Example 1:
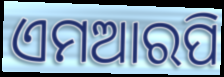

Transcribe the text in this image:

ଏମଆରପି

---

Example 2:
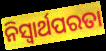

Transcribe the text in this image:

ନିସ୍ଵାର୍ଥପରତା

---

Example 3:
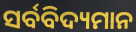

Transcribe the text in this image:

ସର୍ବବିଦ୍ୟମାନ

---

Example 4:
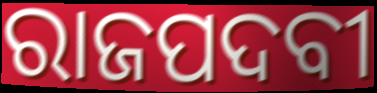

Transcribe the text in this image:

ରାଜପଦବୀ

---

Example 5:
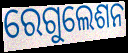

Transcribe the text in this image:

ରେଗୁଲେଶନ